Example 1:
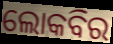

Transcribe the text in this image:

ଲୋକବିର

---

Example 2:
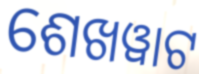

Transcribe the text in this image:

ଶେଖୱାଟ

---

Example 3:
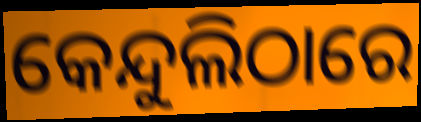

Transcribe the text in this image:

କେନ୍ଦୁଲିଠାରେ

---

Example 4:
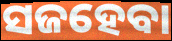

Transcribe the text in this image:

ସଜହେବା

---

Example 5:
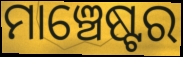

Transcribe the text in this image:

ମାଞ୍ଚେଷ୍ଟର